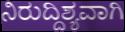
ನಿರುದ್ದಿಶ್ಯವಾಗಿ